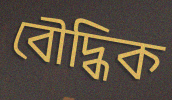
বৌদ্ধিক